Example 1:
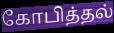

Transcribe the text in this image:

கோபித்தல்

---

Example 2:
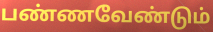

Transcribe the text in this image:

பண்ணவேண்டும்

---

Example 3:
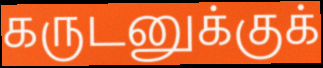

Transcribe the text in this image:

கருடனுக்குக்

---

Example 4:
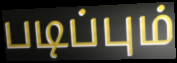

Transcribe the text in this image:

படிப்பும்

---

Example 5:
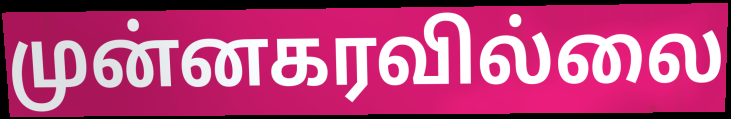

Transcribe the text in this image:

முன்னகரவில்லை